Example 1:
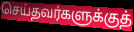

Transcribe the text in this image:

செய்தவர்களுக்குத்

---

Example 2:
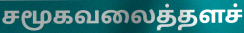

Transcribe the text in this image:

சமூகவலைத்தளச்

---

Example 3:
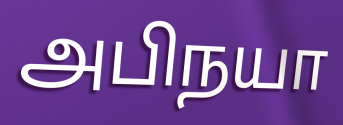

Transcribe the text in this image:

அபிநயா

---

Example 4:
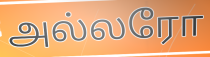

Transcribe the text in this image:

அல்லரோ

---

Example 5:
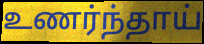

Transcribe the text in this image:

உணர்ந்தாய்